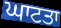
ਘਾਟਤਾ